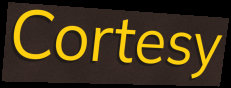
Cortesy